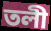
তলী